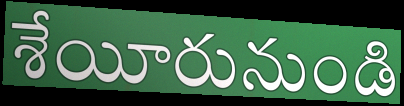
శేయీరునుండి